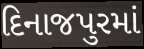
દિનાજપુરમાં